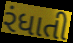
રંધાતી